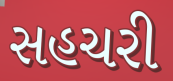
સહચરી